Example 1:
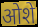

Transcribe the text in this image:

ओशे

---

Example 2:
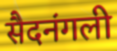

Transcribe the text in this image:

सैदनंगली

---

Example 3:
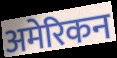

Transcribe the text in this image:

अमेरिकन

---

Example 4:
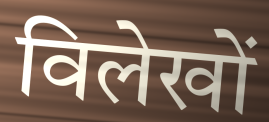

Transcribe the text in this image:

विलेखों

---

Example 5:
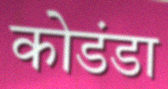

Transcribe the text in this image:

कोडंडा